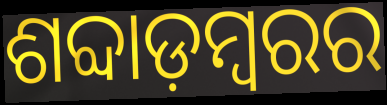
ଶବ୍ଦାଡ଼ମ୍ବରର